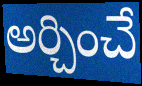
అర్చించే